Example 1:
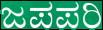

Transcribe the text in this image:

ಜಪಪರಿ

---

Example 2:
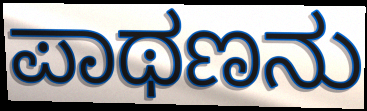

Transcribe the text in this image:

ಪಾಥಣನು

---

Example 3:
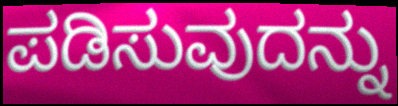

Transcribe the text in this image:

ಪಡಿಸುವುದನ್ನು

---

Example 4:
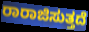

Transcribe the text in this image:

ರಾರಾಜಿಸುತ್ತದೆ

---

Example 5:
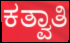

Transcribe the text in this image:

ಕತ್ವಾತಿ